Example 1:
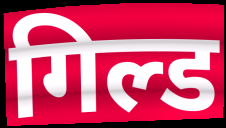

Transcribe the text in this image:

गिल्ड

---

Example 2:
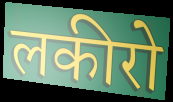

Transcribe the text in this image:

लकीरो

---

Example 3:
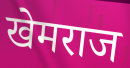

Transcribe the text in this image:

खेमराज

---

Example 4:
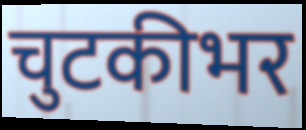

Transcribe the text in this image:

चुटकीभर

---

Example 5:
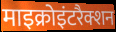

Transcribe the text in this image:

माइक्रोइंटरैक्शन